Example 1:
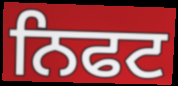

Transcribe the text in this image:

ਨਿਫਟ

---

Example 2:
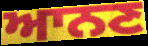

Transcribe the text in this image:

ਆਨਣ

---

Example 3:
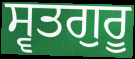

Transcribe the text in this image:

ਸ੍ਵਤਗੁਰੂ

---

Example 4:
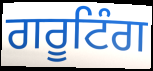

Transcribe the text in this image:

ਗਰੂਟਿੰਗ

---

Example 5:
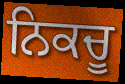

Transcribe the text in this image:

ਨਿਕਚੂ